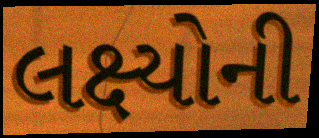
લક્ષ્યોની